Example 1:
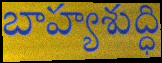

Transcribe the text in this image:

బాహ్యశుద్ధి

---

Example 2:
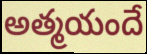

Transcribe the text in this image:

అత్మయందే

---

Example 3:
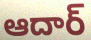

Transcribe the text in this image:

ఆదార్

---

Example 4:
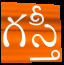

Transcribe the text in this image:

గస్తీ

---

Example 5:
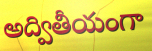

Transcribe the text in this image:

అద్వితీయంగా